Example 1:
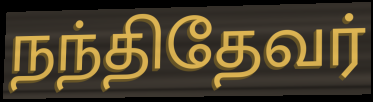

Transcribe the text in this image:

நந்திதேவர்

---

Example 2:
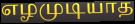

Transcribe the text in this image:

எழமுடியாத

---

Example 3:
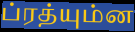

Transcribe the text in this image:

ப்ரத்யும்ன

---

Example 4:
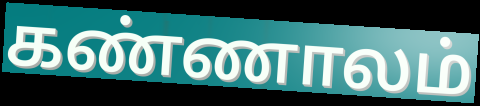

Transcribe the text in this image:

கண்ணாலம்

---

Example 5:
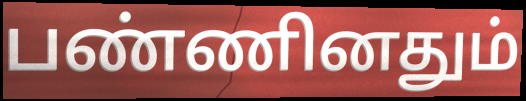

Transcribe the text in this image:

பண்ணினதும்